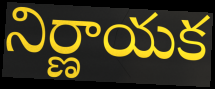
నిర్ణాయక